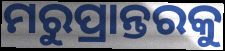
ମରୁପ୍ରାନ୍ତରକୁ